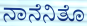
ನಾನೆನಿತೊ